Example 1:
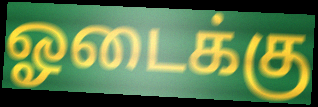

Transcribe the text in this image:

ஓடைக்கு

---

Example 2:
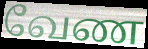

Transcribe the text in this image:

வேண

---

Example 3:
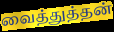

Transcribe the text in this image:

வைத்துத்தன்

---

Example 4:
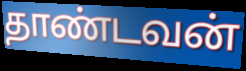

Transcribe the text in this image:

தாண்டவன்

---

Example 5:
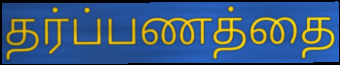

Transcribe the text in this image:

தர்ப்பணத்தை